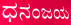
ಧನಂಜಯ